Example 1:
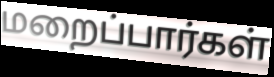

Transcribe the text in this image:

மறைப்பார்கள்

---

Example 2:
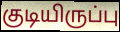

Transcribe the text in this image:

குடியிருப்பு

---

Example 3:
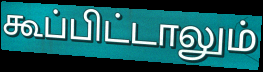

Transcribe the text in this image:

கூப்பிட்டாலும்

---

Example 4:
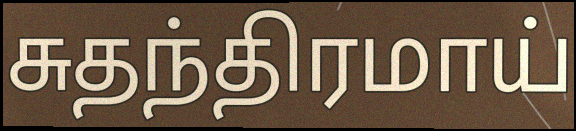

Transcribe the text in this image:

சுதந்திரமாய்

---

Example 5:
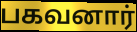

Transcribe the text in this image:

பகவனார்